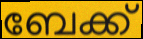
ബേക്ക്